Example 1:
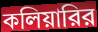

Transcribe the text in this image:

কলিয়ারির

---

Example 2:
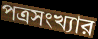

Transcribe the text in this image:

পত্রসংখ্যার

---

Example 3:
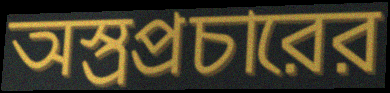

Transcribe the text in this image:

অস্ত্রপ্রচারের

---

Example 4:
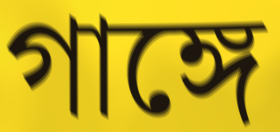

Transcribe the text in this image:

গাঙ্গে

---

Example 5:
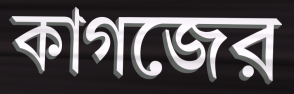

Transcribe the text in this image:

কাগজের